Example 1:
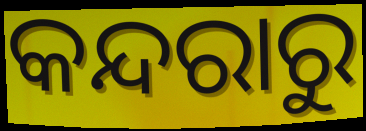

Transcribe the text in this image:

କନ୍ଦରାରୁ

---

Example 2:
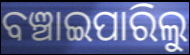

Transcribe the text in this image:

ବଞ୍ଚାଇପାରିଲୁ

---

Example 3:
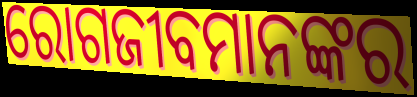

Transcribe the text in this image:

ରୋଗଜୀବମାନଙ୍କର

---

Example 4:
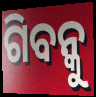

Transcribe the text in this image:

ଗିବନ୍କୁ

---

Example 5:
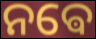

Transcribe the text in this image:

ନଵେ